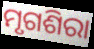
ମୃଗଶିରା